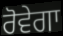
ਰੋਵੇਗਾ